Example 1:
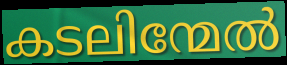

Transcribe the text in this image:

കടലിന്മേൽ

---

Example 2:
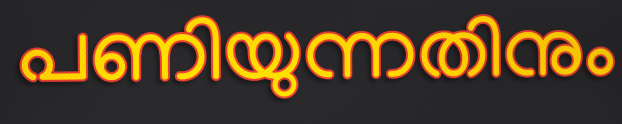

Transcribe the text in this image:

പണിയുന്നതിനും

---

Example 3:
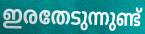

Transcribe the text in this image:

ഇരതേടുന്നുണ്ട്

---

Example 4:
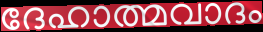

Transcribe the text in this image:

ദേഹാത്മവാദം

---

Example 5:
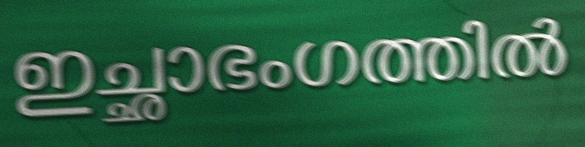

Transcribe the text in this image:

ഇച്ഛാഭംഗത്തിൽ